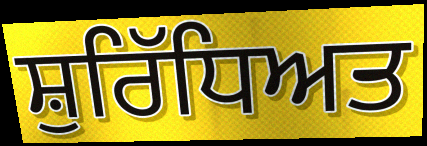
ਸ਼ੁਰਿੱਧਿਅਤ